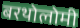
बरथोलोमी